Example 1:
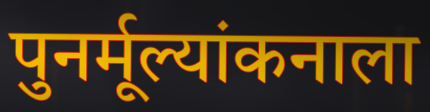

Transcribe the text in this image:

पुनर्मूल्यांकनाला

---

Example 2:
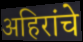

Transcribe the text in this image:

अहिरांचे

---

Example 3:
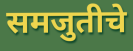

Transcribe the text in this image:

समजुतीचे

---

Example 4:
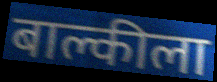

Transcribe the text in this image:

बाल्कीला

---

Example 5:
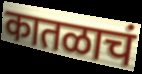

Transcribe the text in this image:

कातळाचं